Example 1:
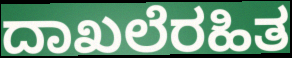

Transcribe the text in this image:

ದಾಖಲೆರಹಿತ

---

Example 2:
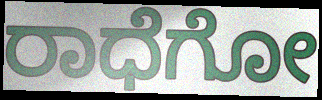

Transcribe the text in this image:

ರಾಧೆಗೋ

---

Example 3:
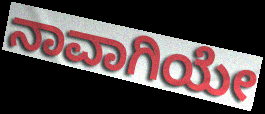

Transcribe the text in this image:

ನಾವಾಗಿಯೇ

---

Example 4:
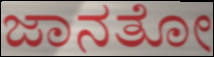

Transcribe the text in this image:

ಜಾನತೋ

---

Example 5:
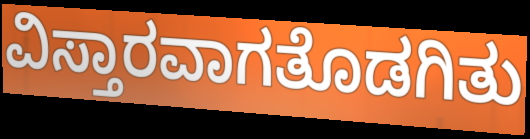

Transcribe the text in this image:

ವಿಸ್ತಾರವಾಗತೊಡಗಿತು